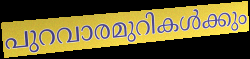
പുറവാരമുറികൾക്കും